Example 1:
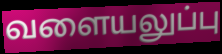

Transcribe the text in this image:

வளையலுப்பு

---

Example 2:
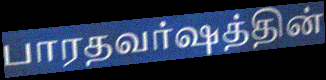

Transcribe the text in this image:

பாரதவர்ஷத்தின்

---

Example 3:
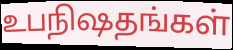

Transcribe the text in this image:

உபநிஷதங்கள்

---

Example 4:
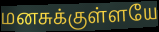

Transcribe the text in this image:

மனசுக்குள்ளயே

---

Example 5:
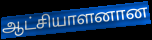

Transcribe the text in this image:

ஆட்சியாளனான